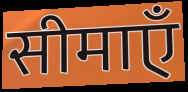
सीमाएँ